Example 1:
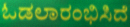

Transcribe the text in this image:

ಓಡಲಾರಂಭಿಸಿದೆ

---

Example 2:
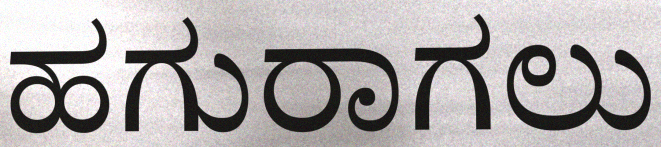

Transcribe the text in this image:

ಹಗುರಾಗಲು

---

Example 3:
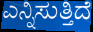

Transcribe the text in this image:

ಎನ್ನಿಸುತ್ತಿದೆ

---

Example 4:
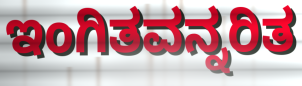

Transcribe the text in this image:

ಇಂಗಿತವನ್ನರಿತ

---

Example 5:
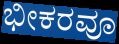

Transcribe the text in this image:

ಭೀಕರವೂ